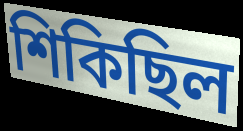
শিকিছিল